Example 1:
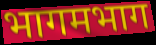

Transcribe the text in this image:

भागमभाग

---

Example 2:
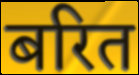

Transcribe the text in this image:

बरित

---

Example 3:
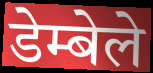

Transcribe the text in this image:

डेम्बेले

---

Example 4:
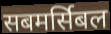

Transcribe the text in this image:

सबमर्सिबल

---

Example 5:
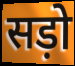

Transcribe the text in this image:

सड़ो